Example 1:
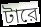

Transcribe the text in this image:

টারে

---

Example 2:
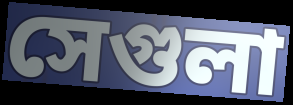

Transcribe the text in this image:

সেগুলা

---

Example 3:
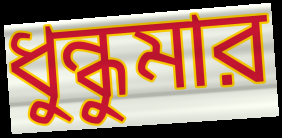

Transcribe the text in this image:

ধুন্ধুমার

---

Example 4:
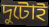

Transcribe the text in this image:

দুটোই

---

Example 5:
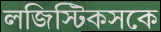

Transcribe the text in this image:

লজিস্টিকসকে